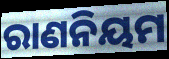
ରାଣନିୟମ